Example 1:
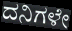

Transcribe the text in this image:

ದನಿಗಳೇ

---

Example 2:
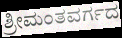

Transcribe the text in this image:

ಶ್ರೀಮಂತವರ್ಗದ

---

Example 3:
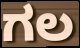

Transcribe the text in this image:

ಗಲ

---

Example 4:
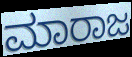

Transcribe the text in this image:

ಮಾರಾಜ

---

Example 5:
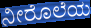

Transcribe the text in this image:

ನೀರೊಲೆಯ